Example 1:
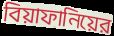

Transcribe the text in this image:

বিয়াফানিয়ের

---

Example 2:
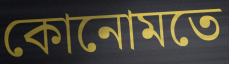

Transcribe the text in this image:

কোনোমতে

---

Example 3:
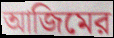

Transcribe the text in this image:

আজিমের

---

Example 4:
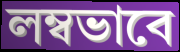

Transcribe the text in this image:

লম্বভাবে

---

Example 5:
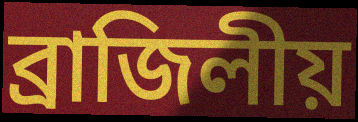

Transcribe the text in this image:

ব্রাজিলীয়